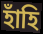
হাঁহি